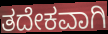
ತದೇಕವಾಗಿ